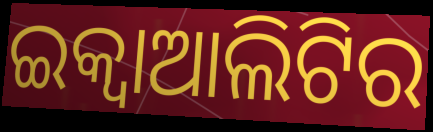
ଇକ୍ୱାଆଲିଟିର